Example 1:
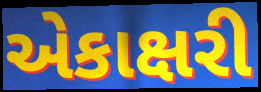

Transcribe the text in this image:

એકાક્ષરી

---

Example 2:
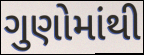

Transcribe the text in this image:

ગુણોમાંથી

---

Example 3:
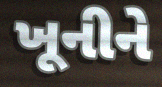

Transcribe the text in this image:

ખૂનીને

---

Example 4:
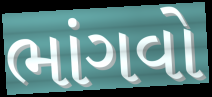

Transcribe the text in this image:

ભાંગવો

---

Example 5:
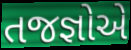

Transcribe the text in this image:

તજજ્ઞોએ